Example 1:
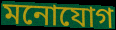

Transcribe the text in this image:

মনোযোগ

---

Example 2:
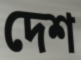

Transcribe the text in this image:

দেশ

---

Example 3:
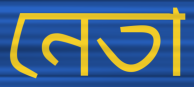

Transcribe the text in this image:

নেতা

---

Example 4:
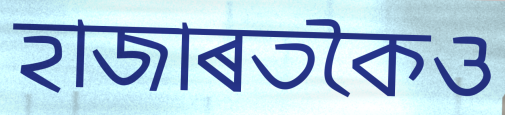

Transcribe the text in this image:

হাজাৰতকৈও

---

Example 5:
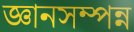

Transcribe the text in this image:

জ্ঞানসম্পন্ন